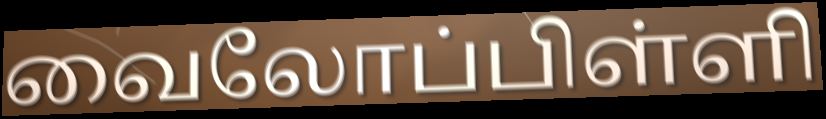
வைலோப்பிள்ளி